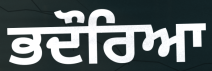
ਭਦੌਰਿਆ